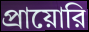
প্রায়োরি